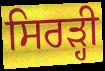
ਸਿਰੜ੍ਹੀ